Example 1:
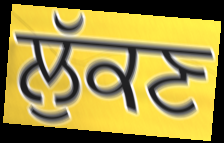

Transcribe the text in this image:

ਲੁੱਕਣ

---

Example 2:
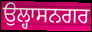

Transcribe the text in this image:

ਉਲ੍ਹਾਸਨਗਰ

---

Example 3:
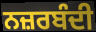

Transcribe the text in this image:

ਨਜ਼ਰਬੰਦੀ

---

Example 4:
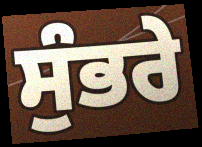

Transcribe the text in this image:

ਸੁੰਭਰੇ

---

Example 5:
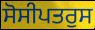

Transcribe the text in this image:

ਸੋਸੀਪਤਰੁਸ